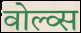
वोल्व्स